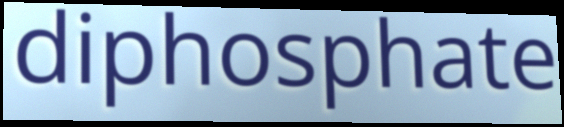
diphosphate